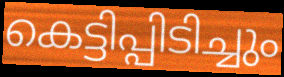
കെട്ടിപ്പിടിച്ചും